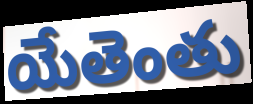
యేతెంతు